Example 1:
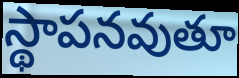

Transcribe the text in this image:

స్థాపనవుతూ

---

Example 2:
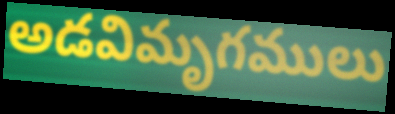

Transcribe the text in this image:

అడవిమృగములు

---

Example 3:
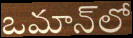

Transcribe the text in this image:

ఒమాన్‌లో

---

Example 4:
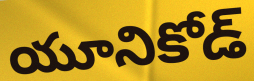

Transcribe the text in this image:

యూనికోడ్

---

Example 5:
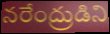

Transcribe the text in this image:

నరేంద్రుడిని